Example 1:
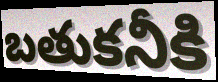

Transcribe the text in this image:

బతుకనీకి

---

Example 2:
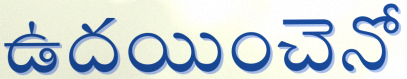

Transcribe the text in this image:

ఉదయించెనో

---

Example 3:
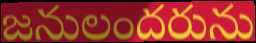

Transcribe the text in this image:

జనులందరును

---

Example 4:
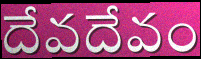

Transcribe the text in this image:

దేవదేవం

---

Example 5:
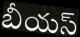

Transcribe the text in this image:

బీయస్